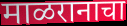
माळरानाचा